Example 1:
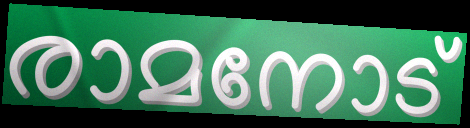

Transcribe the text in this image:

രാമനോട്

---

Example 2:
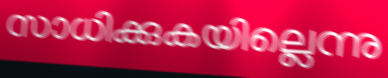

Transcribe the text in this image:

സാധിക്കുകയില്ലെന്നു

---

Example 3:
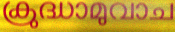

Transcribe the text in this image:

ക്രുദ്ധാമുവാച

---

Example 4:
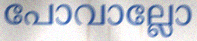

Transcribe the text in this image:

പോവാല്ലോ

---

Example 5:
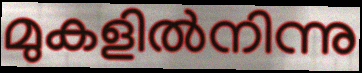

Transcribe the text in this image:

മുകളിൽനിന്നു